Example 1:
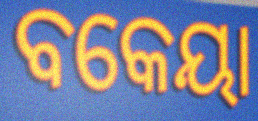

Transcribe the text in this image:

ବକେୟା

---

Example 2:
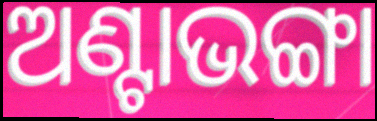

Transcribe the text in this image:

ଅଣ୍ଟାଭଙ୍ଗା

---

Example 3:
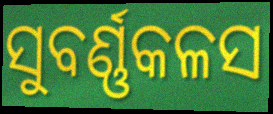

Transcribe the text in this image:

ସୁବର୍ଣ୍ଣକଳସ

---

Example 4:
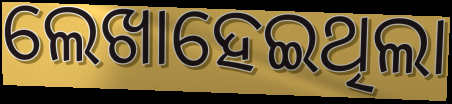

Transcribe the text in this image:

ଲେଖାହେଇଥିଲା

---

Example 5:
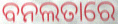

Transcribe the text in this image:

ବନଲତାରେ